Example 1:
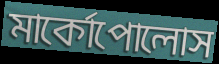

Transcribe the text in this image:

মার্কোপোলোস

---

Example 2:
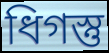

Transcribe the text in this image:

ধিগস্তু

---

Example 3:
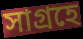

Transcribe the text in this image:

সাগ্রহে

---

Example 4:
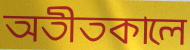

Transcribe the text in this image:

অতীতকালে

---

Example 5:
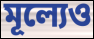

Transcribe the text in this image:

মূল্যেও